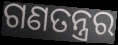
ଗଣତନ୍ତ୍ରର